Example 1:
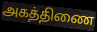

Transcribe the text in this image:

அகத்திணை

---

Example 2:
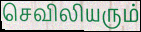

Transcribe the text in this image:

செவிலியரும்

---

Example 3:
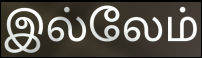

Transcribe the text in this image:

இல்லேம்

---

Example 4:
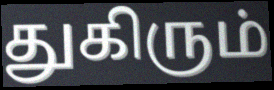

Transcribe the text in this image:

துகிரும்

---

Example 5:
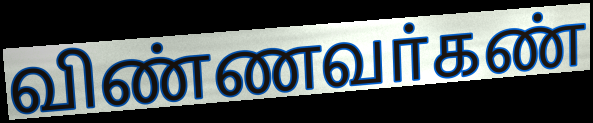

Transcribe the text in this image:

விண்ணவர்கண்